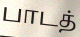
பாடத்